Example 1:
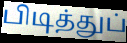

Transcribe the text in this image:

பிடித்துப்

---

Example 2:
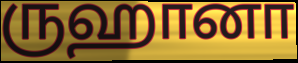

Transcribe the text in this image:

ருஹானா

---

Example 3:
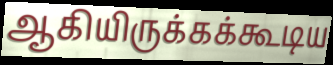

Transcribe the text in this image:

ஆகியிருக்கக்கூடிய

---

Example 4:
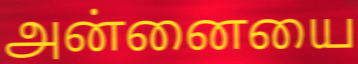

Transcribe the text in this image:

அன்னையை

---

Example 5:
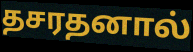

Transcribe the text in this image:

தசரதனால்